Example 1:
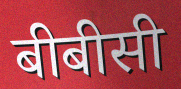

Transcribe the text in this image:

बीबीसी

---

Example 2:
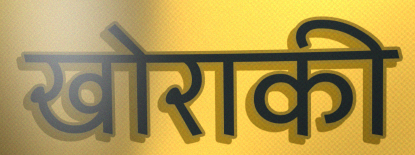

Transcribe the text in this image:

खोराकी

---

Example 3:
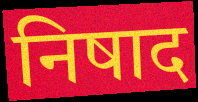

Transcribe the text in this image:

निषाद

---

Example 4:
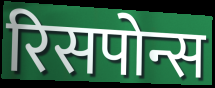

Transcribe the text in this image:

रिसपोन्स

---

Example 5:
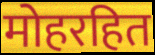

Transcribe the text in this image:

मोहरहित